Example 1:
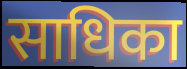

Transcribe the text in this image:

साधिका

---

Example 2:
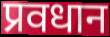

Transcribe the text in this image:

प्रवधान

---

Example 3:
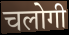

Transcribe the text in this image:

चलोगी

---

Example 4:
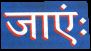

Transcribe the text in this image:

जाएंः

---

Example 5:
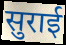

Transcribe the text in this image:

सुराई